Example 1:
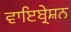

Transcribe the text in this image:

ਵਾਇਬ੍ਰੇਸ਼ਨ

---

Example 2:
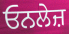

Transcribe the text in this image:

ਓਨਲੇਜ਼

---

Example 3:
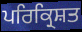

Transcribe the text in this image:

ਪਰਿਕ੍ਰਿਸ਼ਤ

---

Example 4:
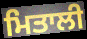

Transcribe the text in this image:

ਮਿਤਾਲੀ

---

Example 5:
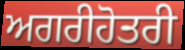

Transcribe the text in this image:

ਅਗਰੀਹੋਤਰੀ